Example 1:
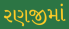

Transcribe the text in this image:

રણજીમાં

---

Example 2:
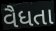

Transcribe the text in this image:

વૈધતા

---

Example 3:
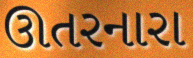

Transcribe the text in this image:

ઊતરનારા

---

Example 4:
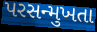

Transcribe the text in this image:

પરસન્મુખતા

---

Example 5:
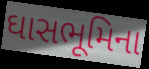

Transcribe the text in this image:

ઘાસભૂમિના